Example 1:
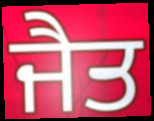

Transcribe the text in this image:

ਜੈਤ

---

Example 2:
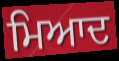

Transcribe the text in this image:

ਮਿਆਦ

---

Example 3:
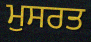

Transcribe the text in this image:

ਮੁਸਰਤ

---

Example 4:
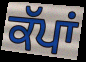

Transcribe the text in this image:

ਕੱਪਾਂ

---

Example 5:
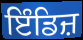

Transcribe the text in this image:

ਇੰਡਿਜ਼